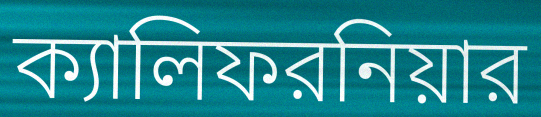
ক্যালিফরনিয়ার